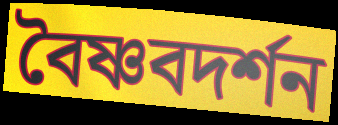
বৈষ্ণবদর্শন